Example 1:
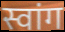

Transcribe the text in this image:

स्‍वांग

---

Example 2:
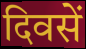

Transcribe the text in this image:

दिवसें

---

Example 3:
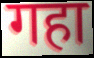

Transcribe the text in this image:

गहा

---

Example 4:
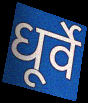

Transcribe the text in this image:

धूर्वे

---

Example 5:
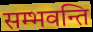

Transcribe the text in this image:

सम्भवन्ति